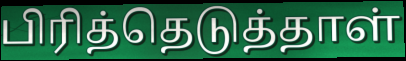
பிரித்தெடுத்தாள்